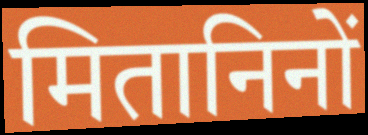
मितानिनों